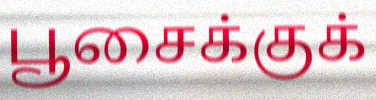
பூசைக்குக்